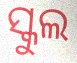
ସ୍କୁଲ